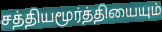
சத்தியமூர்த்தியையும்